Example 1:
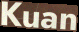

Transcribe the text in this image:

Kuan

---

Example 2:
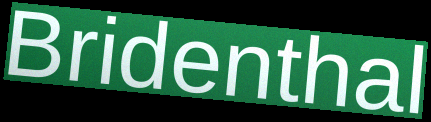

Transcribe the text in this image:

Bridenthal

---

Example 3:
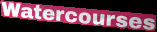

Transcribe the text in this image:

Watercourses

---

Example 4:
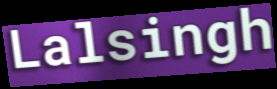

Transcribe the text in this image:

Lalsingh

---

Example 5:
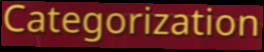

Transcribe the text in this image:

Categorization